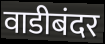
वाडीबंदर